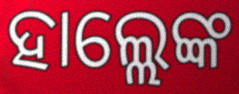
ହାଲ୍ଲେଙ୍କ